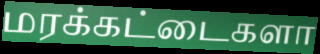
மரக்கட்டைகளா